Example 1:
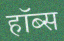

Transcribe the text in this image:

हॉब्स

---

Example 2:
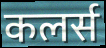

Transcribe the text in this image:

कलर्स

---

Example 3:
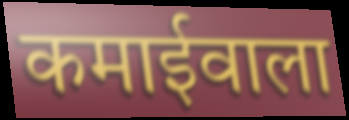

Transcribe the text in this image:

कमाईवाला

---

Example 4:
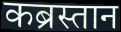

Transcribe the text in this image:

कब्रस्तान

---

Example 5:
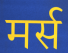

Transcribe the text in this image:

मर्स